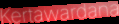
Kertawardana